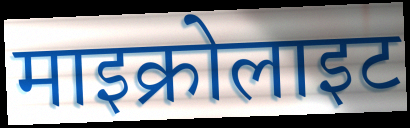
माइक्रोलाइट